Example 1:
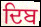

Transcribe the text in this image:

ਦਿਬ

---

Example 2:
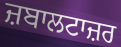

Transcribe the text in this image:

ਜ਼ਬਾਲਟਾਜ਼ਰ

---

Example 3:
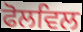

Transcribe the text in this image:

ਫੋਲਵਿਲ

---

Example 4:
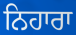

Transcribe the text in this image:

ਨਿਹਾਰਾ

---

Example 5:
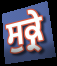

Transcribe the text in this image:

ਸੁਕ੍ਰੇ